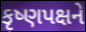
કૃષ્ણપક્ષને